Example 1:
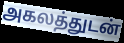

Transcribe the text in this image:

அகலத்துடன்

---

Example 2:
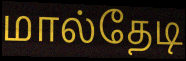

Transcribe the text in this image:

மால்தேடி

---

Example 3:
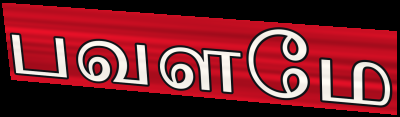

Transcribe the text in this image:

பவளமே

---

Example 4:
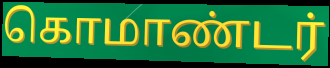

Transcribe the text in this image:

கொமாண்டர்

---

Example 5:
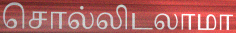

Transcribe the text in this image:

சொல்லிடலாமா